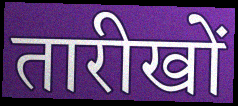
तारीखों